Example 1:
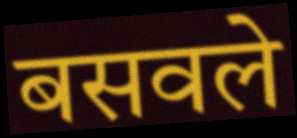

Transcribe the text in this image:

बसवले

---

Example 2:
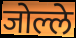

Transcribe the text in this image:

जोल्ले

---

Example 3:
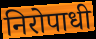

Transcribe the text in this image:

निरोपाधी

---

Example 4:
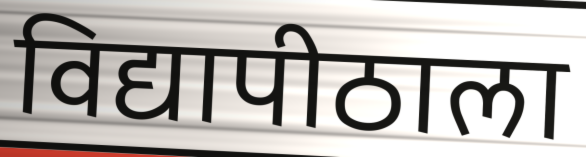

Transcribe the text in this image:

विद्यापीठाला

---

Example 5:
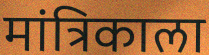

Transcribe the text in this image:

मांत्रिकाला